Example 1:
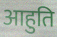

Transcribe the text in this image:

आहुति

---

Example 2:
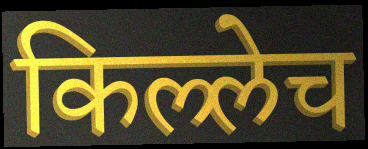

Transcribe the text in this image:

किल्लेच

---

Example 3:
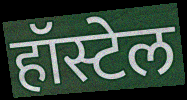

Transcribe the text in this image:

हॉस्टेल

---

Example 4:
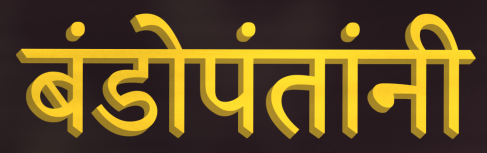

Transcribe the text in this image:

बंडोपंतांनी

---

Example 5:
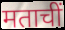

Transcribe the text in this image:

मताचीं